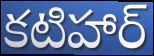
కటిహార్